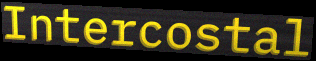
Intercostal